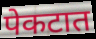
पेकटात